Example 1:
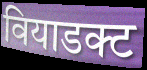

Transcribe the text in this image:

वियाडक्ट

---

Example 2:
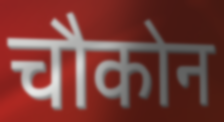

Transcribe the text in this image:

चौकोन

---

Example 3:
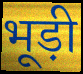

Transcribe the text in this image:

भूड़ी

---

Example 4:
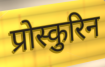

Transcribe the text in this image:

प्रोस्कुरिन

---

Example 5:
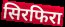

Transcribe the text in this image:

सिरफिरा